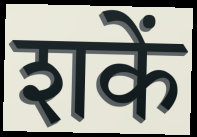
शकें